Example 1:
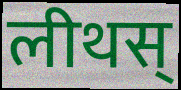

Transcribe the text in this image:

लीथस्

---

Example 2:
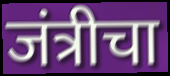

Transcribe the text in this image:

जंत्रीचा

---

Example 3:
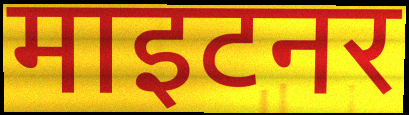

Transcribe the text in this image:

माइटनर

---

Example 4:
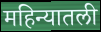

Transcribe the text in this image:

महिन्यातली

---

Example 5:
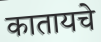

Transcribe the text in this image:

कातायचे